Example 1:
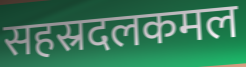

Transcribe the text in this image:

सहस्रदलकमल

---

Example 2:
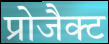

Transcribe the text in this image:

प्रोजैक्ट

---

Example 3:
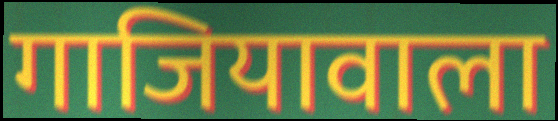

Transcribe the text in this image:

गाजियावाला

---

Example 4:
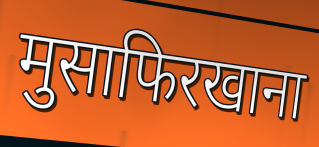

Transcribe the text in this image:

मुसाफिरखाना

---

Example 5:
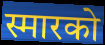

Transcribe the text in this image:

स्मारको